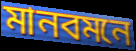
মানবমনে